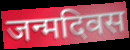
जन्मदिवस